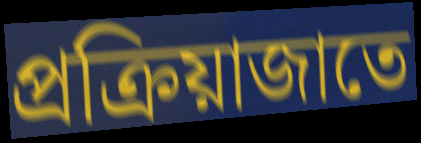
প্রক্রিয়াজাতে